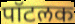
पॉटलक